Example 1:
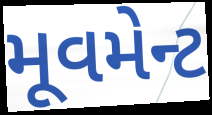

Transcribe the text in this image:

મૂવમેન્ટ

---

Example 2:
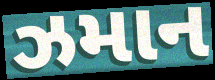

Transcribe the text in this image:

ઝમાન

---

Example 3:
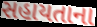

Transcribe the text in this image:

સહાયતાના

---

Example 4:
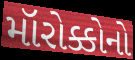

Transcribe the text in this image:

મૉરોક્કોનો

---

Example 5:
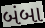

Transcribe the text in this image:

બંબા